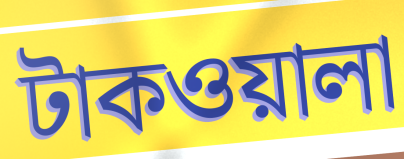
টাকওয়ালা